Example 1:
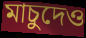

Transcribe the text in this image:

মাচুদেও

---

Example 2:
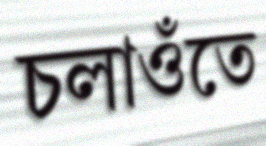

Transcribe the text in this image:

চলাওঁতে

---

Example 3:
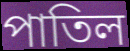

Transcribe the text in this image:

পাতিল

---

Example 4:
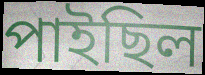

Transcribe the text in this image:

পাইছিল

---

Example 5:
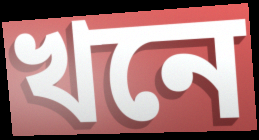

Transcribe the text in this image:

খনে